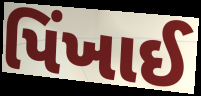
પિંખાઈ